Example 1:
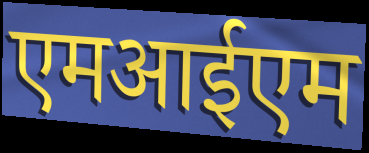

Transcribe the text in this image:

एमआईएम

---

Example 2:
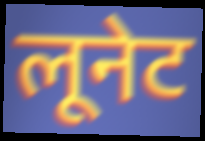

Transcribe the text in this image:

लूनेट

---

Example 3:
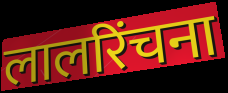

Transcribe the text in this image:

लालरिंचना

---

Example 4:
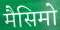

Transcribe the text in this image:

मैसिमो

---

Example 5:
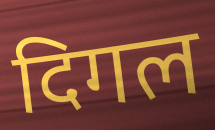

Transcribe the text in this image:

दिगल